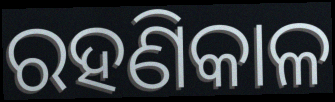
ରହଣିକାଳ